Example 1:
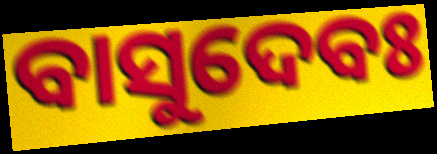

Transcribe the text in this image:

ବାସୁଦେବଃ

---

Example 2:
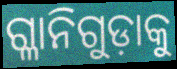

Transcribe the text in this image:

ଗ୍ଳାନିଗୁଡ଼ାକୁ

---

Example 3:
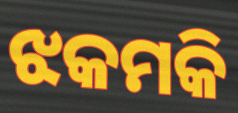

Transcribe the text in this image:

ଝକମକି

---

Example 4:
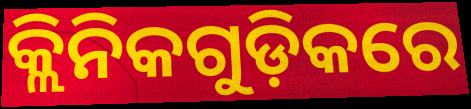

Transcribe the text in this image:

କ୍ଲିନିକଗୁଡ଼ିକରେ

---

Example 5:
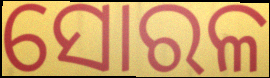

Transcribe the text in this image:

ସୋରଳ